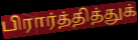
பிரார்த்தித்துக்